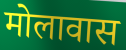
मोलावास